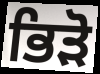
ਭਿੜੋ